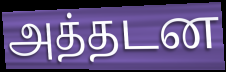
அத்தடன